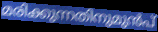
മരിക്കുന്നതിനുമുൻപ്